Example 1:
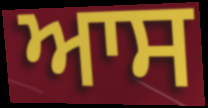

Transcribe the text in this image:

ਆਸ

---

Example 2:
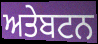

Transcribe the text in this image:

ਅਤੇਬਟਨ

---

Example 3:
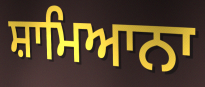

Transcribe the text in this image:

ਸ਼ਾਮਿਆਨਾ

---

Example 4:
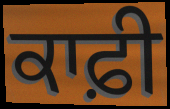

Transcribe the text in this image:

ਕਾਫ਼ੀ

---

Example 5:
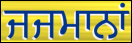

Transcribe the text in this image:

ਜਜਮਾਨਾਂ